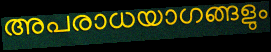
അപരാധയാഗങ്ങളും